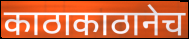
काठाकाठानेच